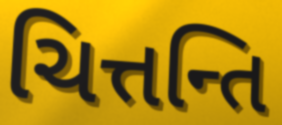
ચિત્તન્તિ